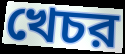
খেচর